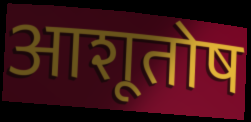
आशूतोष